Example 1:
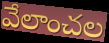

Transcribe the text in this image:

వేలాంచల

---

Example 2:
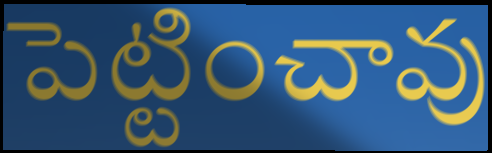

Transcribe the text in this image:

పెట్టించావు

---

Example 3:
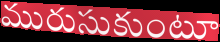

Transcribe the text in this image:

మురుసుకుంటూ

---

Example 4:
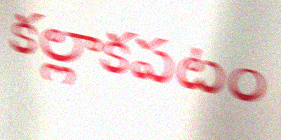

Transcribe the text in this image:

కల్లాకపటం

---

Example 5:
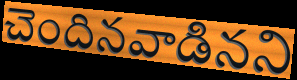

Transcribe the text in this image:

చెందినవాడినని